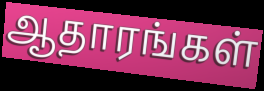
ஆதாரங்கள்